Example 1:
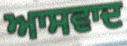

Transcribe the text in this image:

ਆਸਵਾਦ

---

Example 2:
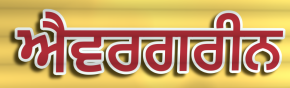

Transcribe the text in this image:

ਐਵਰਗਰੀਨ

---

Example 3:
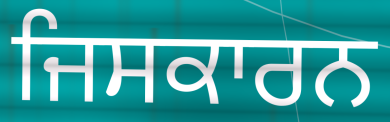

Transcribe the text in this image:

ਜਿਸਕਾਰਨ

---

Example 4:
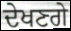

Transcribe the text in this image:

ਦੇਖਣਗੇ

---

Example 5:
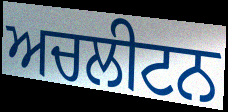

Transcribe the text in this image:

ਅਚਲੀਟਨ